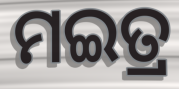
ମଇତ୍ର